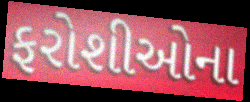
ફરોશીઓના